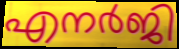
എനർജി